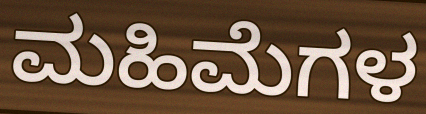
ಮಹಿಮೆಗಳ